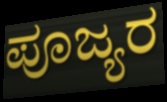
ಪೂಜ್ಯರ